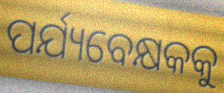
ପର୍ଯ୍ୟବେକ୍ଷକକୁ